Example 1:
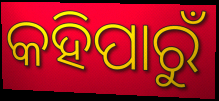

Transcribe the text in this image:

କହିପାରୁଁ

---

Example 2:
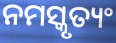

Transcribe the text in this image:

ନମସ୍କୃତ୍ୟଂ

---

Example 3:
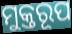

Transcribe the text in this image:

ମୁକ୍ତରୂପ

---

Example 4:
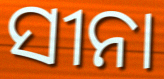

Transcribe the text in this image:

ସୀନା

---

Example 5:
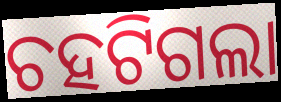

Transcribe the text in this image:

ଚହଟିଗଲା